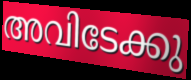
അവിടേക്കു